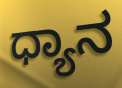
ಧ್ಯಾನ